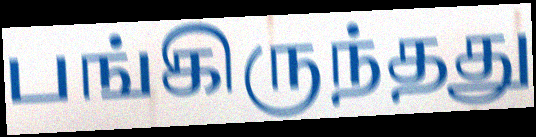
பங்கிருந்தது